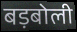
बड़बोली